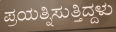
ಪ್ರಯತ್ನಿಸುತ್ತಿದ್ದಳು